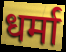
धर्मा